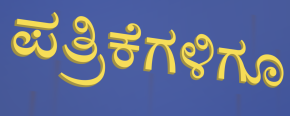
ಪತ್ರಿಕೆಗಳಿಗೂ